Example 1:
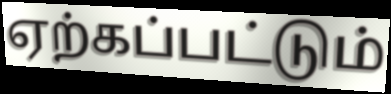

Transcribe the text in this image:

ஏற்கப்பட்டும்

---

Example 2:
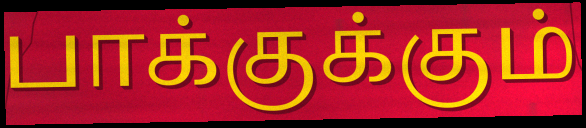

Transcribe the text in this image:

பாக்குக்கும்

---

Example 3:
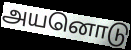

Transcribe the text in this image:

அயனொடு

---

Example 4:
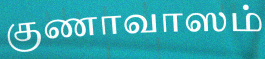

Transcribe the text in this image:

குணாவாஸம்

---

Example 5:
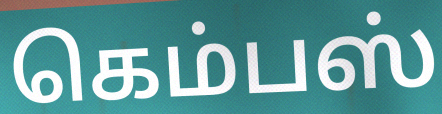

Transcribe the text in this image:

கெம்பஸ்